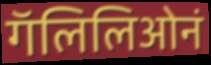
गॅलिलिओनं